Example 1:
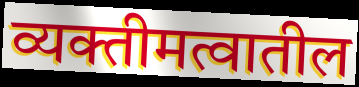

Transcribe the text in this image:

व्यक्तीमत्वातील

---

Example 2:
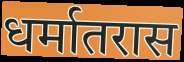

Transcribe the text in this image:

धर्मातरास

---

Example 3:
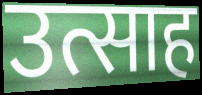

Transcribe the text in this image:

उत्साह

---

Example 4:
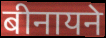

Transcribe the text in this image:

बीनायने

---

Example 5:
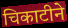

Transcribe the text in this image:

चिकाटीने